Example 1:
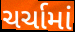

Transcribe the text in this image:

ચર્ચામાં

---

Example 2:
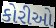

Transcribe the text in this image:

કોરીઓ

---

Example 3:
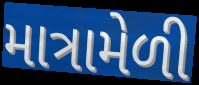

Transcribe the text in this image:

માત્રામેળી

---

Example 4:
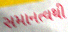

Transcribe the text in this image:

સમાનત્વથી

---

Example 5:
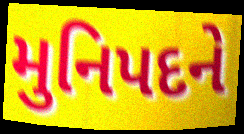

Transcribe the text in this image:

મુનિપદને